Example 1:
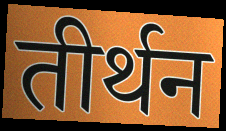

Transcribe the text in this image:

तीर्थन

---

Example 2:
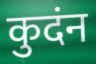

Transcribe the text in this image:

कुदंन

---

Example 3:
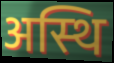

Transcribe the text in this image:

अस्थि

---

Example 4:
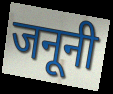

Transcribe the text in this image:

जनूनी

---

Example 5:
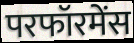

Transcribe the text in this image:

परफॉरमेंस